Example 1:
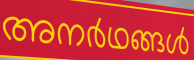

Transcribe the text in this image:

അനർഥങ്ങൾ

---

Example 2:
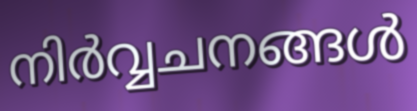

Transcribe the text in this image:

നിർവ്വചനങ്ങൾ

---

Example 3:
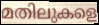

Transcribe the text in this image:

മതിലുകളെ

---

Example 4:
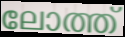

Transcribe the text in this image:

ലോത്ത്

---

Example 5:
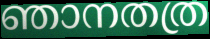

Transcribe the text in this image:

ഞാനതത്ര